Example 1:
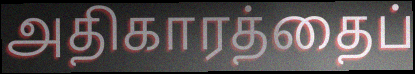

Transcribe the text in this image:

அதிகாரத்தைப்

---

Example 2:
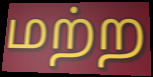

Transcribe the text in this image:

மற்ற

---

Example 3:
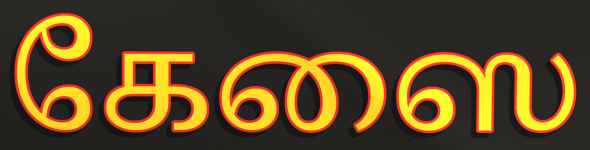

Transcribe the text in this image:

கேஸை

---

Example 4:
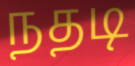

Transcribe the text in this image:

நதடி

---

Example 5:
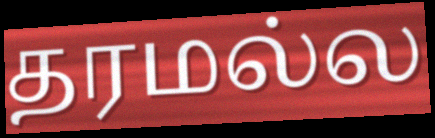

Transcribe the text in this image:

தரமல்ல